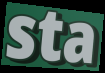
sta